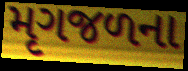
મૃગજળના